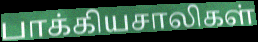
பாக்கியசாலிகள்